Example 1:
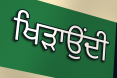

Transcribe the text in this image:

ਖਿੜਾਉਂਦੀ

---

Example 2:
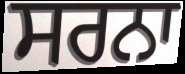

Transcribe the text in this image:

ਸਰਨਾ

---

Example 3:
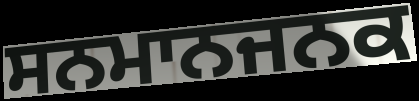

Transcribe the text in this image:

ਸਨਮਾਨਜਨਕ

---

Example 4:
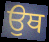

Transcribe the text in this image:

ਉਥ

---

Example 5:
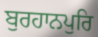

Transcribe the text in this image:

ਬੁਰਹਾਨਪੁਰਿ